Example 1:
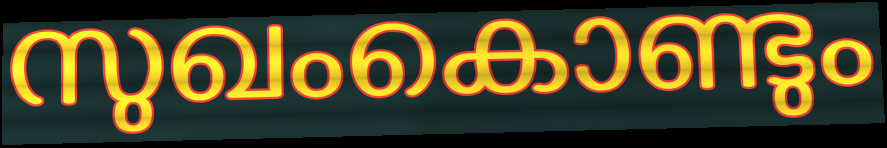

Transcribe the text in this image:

സുഖംകൊണ്ടും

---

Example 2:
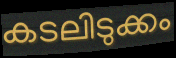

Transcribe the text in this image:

കടലിടുക്കം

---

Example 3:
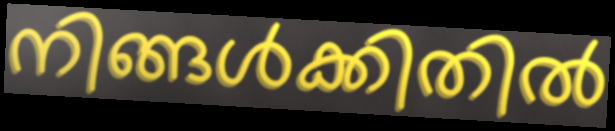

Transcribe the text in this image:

നിങ്ങൾക്കിതിൽ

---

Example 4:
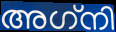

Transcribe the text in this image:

അഗ്‌നി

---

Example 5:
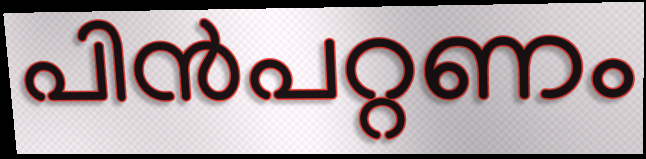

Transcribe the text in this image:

പിൻപറ്റണം